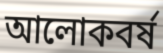
আলোকবর্ষ